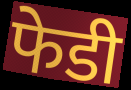
फेडी